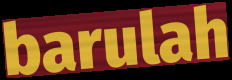
barulah